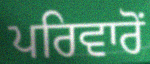
ਪਰਿਵਾਰੋਂ